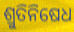
ଶ୍ରୁତିନିଷେଧ